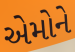
એમોને